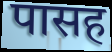
पासह